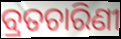
ବ୍ରତଚାରିଣୀ